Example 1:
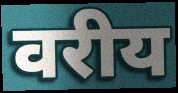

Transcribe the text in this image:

वरीय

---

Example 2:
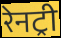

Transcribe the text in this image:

रेनट्री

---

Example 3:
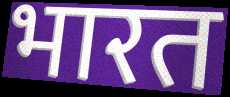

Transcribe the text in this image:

भारत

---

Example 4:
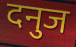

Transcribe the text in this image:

दनुज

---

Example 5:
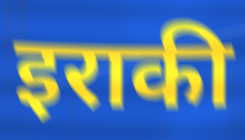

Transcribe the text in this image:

इराकी